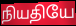
நியதியே